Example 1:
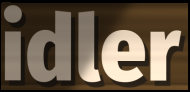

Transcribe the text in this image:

idler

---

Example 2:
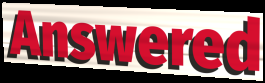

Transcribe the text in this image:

Answered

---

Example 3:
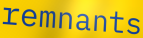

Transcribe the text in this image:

remnants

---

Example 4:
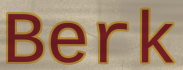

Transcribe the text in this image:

Berk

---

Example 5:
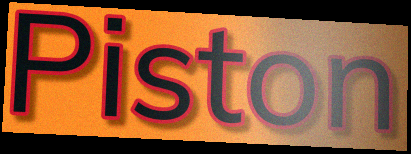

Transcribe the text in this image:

Piston